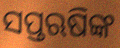
ସପ୍ତଋଷିଙ୍କ